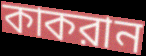
কাকরান